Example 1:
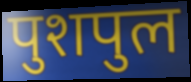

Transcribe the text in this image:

पुशपुल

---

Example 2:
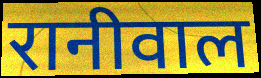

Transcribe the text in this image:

रानीवाल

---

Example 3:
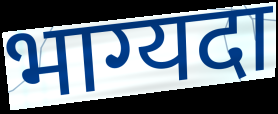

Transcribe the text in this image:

भाग्यदा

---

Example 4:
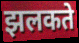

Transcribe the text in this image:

झलकते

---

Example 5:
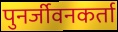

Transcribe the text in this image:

पुनर्जीवनकर्ता